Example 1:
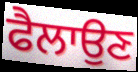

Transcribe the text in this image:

ਫੈਲਾਉਣ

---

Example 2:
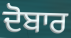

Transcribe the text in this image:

ਦੋਬਾਰ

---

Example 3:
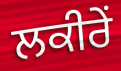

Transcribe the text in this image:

ਲਕੀਰੇਂ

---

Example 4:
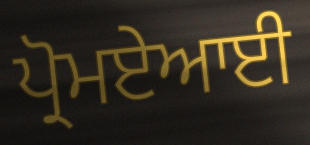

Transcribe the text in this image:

ਪ੍ਰੋਮਏਆਈ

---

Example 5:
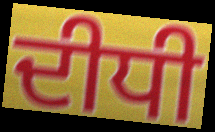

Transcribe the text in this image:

ਦੀਧੀ